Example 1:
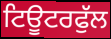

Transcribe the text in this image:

ਟਿਊਟਰਫੁੱਲ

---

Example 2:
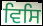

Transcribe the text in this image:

ਵਿਸਿ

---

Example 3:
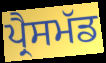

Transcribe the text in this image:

ਪ੍ਰੈਸਮੱਡ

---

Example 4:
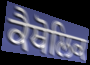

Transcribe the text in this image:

ਕੈਥੋਲਿਕ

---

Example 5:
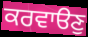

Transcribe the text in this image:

ਕਰਵਾੳਣੁ